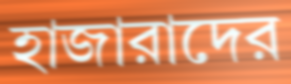
হাজারাদের